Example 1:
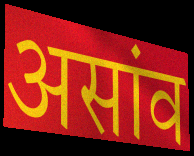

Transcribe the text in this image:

असांव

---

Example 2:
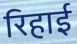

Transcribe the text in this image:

रिहाई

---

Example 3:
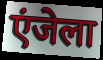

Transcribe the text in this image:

एंजेला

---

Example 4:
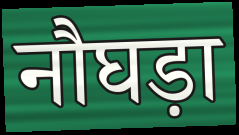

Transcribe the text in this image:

नौघड़ा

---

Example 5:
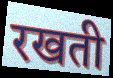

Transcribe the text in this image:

रखती